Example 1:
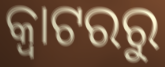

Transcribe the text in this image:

କ୍ୱାଟରରୁ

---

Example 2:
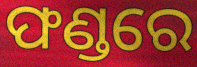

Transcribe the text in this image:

ଫଣ୍ଡରେ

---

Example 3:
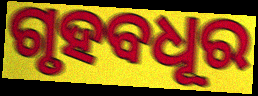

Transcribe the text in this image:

ଗୃହବଧୂର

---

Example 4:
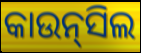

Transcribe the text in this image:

କାଉନ୍‍ସିଲ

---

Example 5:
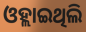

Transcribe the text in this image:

ଓହ୍ଲାଇଥିଲି